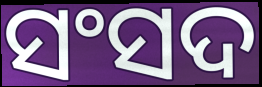
ସଂସଦ